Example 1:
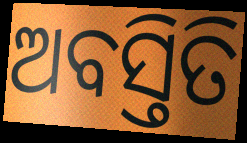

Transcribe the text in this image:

ଅବସ୍ତିତି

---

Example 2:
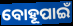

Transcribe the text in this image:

ବୋହୂପାଇଁ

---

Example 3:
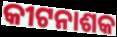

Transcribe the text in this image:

କୀଟନାଶକ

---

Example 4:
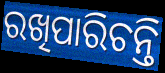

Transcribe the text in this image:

ରଖିପାରିଚନ୍ତି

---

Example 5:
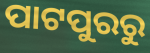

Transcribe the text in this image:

ପାଟପୁରରୁ